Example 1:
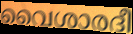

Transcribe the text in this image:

വൈശാരദീ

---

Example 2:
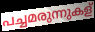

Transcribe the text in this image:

പച്ചമരുന്നുകള്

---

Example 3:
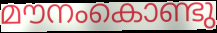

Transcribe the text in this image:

മൗനംകൊണ്ടു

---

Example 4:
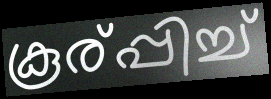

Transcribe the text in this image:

കൂര്പ്പിച്ച്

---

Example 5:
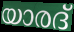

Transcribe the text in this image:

യാരദ്